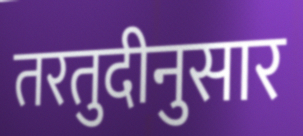
तरतुदीनुसार